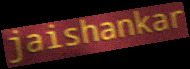
jaishankar